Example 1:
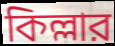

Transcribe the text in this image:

কিল্লার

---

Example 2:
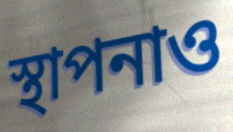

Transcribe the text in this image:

স্থাপনাও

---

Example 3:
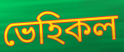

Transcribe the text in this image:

ভেহিকল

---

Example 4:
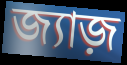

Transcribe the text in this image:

জ্যাজ়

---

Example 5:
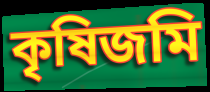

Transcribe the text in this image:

কৃষিজমি